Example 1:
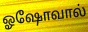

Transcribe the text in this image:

ஓஷோவால்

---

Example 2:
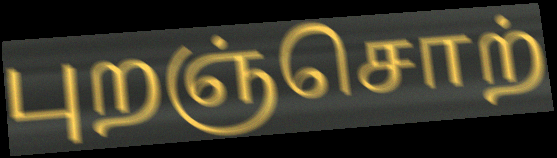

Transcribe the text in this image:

புறஞ்சொற்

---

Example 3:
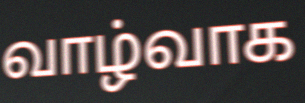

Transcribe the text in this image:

வாழ்வாக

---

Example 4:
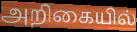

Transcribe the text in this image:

அறிகையில்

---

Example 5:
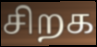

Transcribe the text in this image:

சிறக